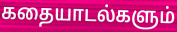
கதையாடல்களும்